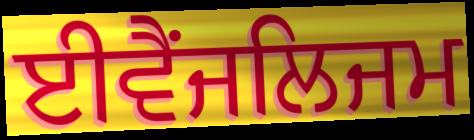
ਈਵੈਂਜਲਿਜਮ